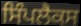
ਸਿੰਪਲੈਕਸ